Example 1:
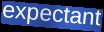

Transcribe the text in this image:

expectant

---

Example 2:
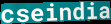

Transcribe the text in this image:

cseindia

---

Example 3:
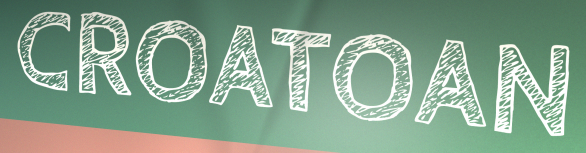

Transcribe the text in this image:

CROATOAN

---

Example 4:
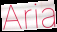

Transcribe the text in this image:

Aria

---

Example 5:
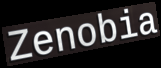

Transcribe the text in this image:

Zenobia